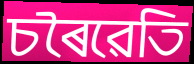
চৰৈৱেতি